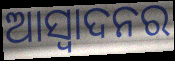
ଆସ୍ବାଦନର